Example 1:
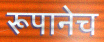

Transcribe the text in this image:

रूपानेच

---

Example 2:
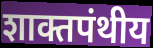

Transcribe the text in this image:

शाक्तपंथीय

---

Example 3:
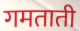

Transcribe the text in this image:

गमताती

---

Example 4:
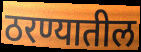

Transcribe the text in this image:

ठरण्यातील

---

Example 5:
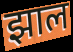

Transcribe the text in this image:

झाल